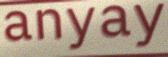
anyay